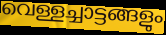
വെള്ളച്ചാട്ടങ്ങളും